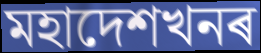
মহাদেশখনৰ